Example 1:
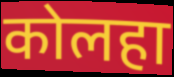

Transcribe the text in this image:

कोलहा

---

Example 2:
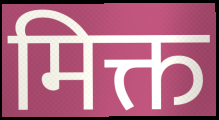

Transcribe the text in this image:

मिक्त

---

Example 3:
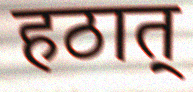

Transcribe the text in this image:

हठात्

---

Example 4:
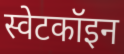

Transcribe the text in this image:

स्वेटकॉइन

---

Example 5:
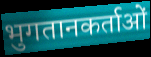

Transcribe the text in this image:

भुगतानकर्ताओं